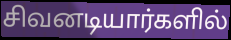
சிவனடியார்களில்